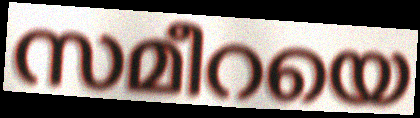
സമീറയെ